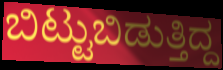
ಬಿಟ್ಟುಬಿಡುತ್ತಿದ್ದ